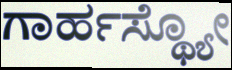
ಗಾರ್ಹಸ್ಥ್ಯೋ